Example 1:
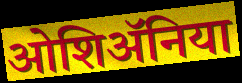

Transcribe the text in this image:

ओशिॲनिया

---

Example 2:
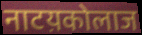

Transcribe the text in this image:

नाटय़कोलाज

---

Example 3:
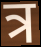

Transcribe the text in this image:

त्र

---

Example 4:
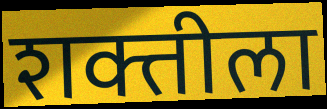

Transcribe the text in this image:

शक्तीला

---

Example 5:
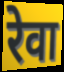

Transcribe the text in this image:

रेवा